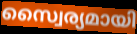
സ്വൈര്യമായി